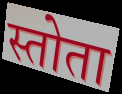
स्तोता